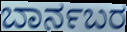
ಬಾರ್ನಬರ